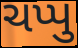
ચપ્પુ